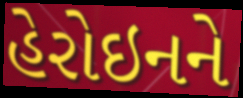
હેરોઇનને